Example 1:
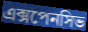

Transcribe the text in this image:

এক্সপেনসিভ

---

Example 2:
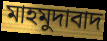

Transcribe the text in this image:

মাহমুদাবাদ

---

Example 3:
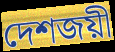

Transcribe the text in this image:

দেশজয়ী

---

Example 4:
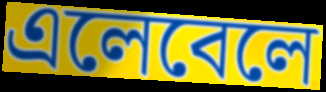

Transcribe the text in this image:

এলেবেলে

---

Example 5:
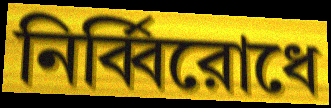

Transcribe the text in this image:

নির্ব্বিরোধে